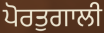
ਪੋਰਤੁਗਾਲੀ